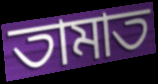
তামাত